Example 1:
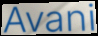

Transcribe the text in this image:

Avani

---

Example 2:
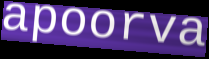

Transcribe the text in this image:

apoorva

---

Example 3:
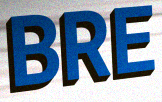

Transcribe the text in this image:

BRE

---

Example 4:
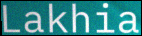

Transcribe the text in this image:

Lakhia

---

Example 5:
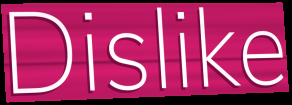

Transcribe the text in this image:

Dislike